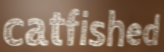
catfished